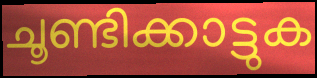
ചൂണ്ടിക്കാട്ടുക